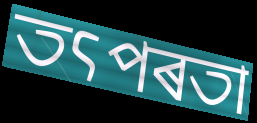
তৎপৰতা